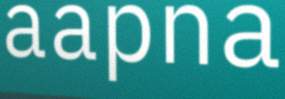
aapna